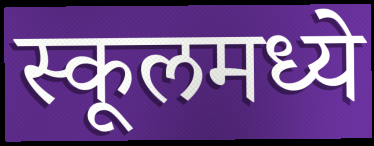
स्कूलमध्ये